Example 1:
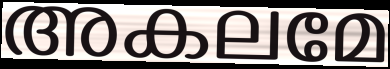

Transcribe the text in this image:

അകലമേ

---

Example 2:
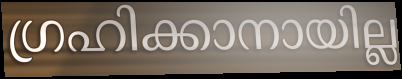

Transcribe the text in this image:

ഗ്രഹിക്കാനായില്ല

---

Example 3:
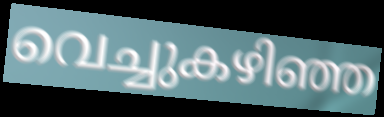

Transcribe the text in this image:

വെച്ചുകഴിഞ്ഞ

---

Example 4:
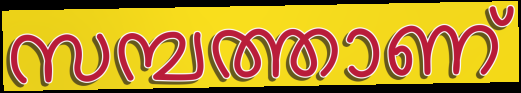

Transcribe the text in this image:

സമ്പത്താണ്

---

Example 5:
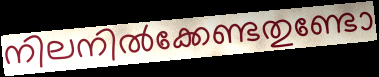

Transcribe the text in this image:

നിലനിൽക്കേണ്ടതുണ്ടോ